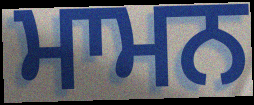
ਮਾਮਨ